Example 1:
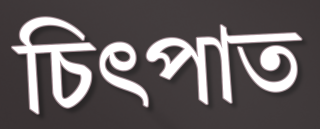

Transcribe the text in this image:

চিৎপাত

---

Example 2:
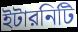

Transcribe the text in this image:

ইটারনিটি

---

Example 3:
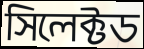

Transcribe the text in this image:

সিলেক্টড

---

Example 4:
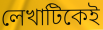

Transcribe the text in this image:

লেখাটিকেই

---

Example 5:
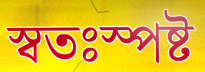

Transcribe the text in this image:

স্বতঃস্পষ্ট